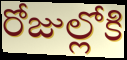
రోజుల్లోకి